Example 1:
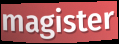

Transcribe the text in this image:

magister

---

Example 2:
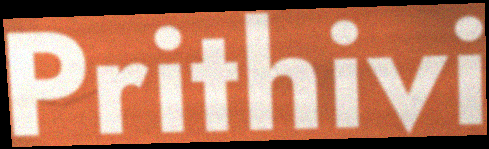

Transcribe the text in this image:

Prithivi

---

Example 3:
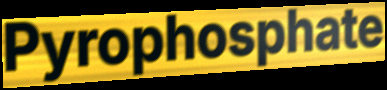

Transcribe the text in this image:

Pyrophosphate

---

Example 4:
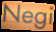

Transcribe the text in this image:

Negi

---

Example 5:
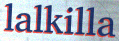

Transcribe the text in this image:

lalkilla